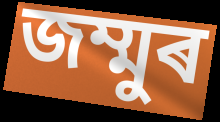
জম্মুৰ